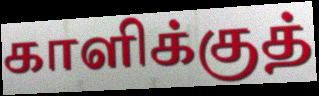
காளிக்குத்